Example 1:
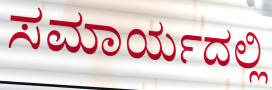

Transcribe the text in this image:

ಸಮಾರ್ಯದಲ್ಲಿ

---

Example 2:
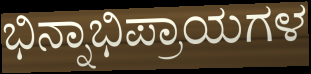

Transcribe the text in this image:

ಭಿನ್ನಾಭಿಪ್ರಾಯಗಳ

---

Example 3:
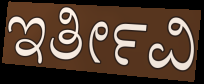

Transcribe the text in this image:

ಇರ್ತೀವಿ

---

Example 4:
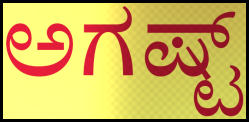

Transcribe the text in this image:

ಅಗಷ್ಟ್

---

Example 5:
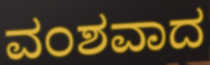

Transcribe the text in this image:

ವಂಶವಾದ